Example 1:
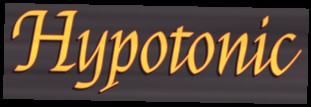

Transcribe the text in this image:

Hypotonic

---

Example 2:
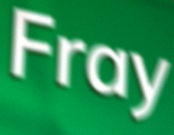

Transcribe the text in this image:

Fray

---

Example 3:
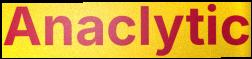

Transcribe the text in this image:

Anaclytic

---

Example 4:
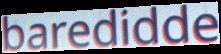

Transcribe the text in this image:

baredidde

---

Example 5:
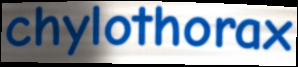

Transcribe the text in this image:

chylothorax